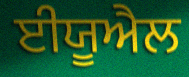
ਈਯੂਐਲ